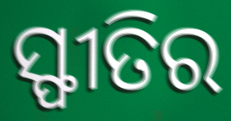
ସ୍ଫୀତିର